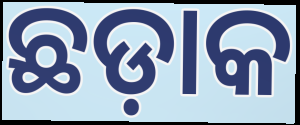
ଛଡ଼ାକ